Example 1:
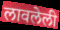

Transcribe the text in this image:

लावलेली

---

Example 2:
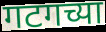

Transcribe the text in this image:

गटगच्या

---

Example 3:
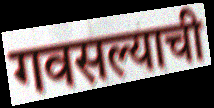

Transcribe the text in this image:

गवसल्याची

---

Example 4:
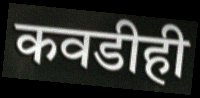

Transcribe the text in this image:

कवडीही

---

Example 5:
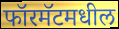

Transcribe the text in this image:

फॉरमॅटमधील